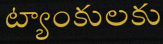
ట్యాంకులకు